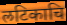
लटिकाचि